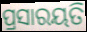
ପ୍ରସାରୟତି